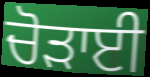
ਚੋੜਾਈ